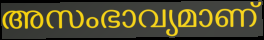
അസംഭാവ്യമാണ്